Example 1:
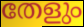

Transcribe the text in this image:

തേളും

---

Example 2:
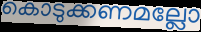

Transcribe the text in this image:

കൊടുക്കണമല്ലോ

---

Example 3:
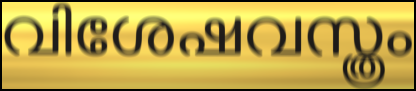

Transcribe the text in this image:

വിശേഷവസ്ത്രം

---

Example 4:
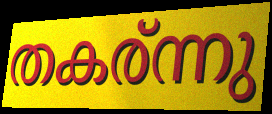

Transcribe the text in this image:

തകര്ന്നു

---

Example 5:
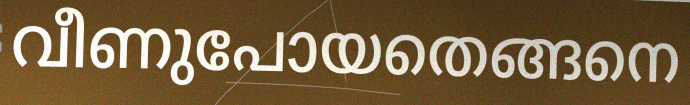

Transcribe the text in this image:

വീണുപോയതെങ്ങനെ